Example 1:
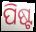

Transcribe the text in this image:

ପିଷ୍ଟ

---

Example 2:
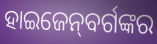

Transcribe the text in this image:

ହାଇଜେନ୍‌ବର୍ଗଙ୍କର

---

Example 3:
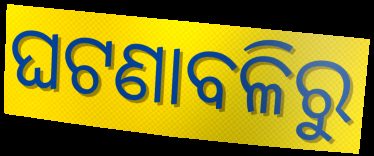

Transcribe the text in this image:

ଘଟଣାବଳିରୁ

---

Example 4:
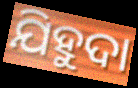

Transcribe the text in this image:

ଯିହୁଦା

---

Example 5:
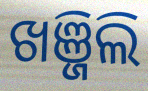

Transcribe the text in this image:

ଖଞ୍ଜିଲି